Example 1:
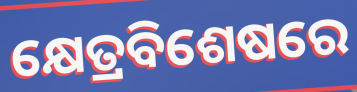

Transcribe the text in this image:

କ୍ଷେତ୍ରବିଶେଷରେ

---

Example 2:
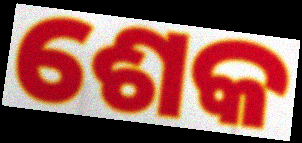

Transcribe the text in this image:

ଶେକ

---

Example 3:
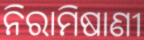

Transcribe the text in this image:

ନିରାମିଷାଣୀ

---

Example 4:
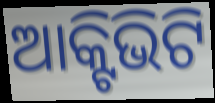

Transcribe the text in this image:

ଆକ୍ଟିଭିଟି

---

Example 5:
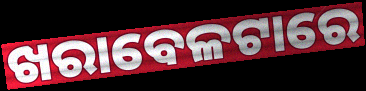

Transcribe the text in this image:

ଖରାବେଳଟାରେ